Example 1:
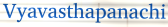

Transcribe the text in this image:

Vyavasthapanachi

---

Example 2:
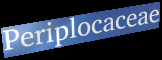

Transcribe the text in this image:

Periplocaceae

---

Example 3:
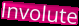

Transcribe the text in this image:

Involute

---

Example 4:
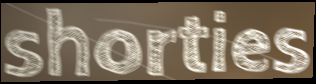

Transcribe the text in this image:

shorties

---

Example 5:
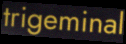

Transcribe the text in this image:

trigeminal